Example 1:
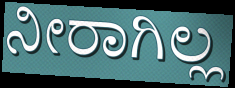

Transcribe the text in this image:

ನೀರಾಗಿಲ್ಲ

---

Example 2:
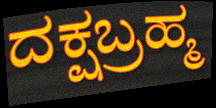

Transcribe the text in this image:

ದಕ್ಷಬ್ರಹ್ಮ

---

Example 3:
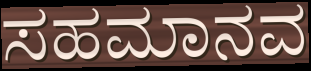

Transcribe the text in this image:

ಸಹಮಾನವ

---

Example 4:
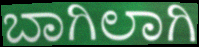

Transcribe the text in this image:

ಬಾಗಿಲಾಗಿ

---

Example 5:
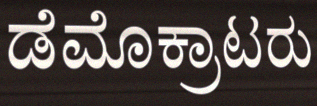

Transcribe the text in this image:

ಡೆಮೊಕ್ರಾಟರು